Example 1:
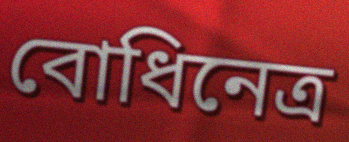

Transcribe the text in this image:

বোধিনেত্ৰ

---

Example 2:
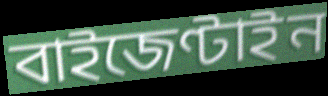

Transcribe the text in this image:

বাইজেণ্টাইন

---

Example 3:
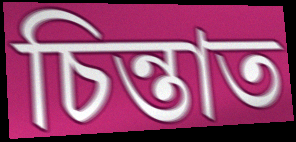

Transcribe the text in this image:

চিন্তাত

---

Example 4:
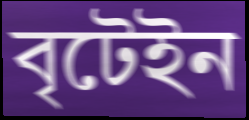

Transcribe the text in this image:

বৃটেইন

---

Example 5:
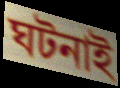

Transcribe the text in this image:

ঘটনাই